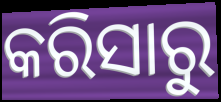
କରିସାରୁ